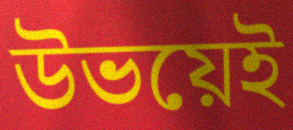
উভয়েই